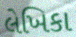
લેખિકા